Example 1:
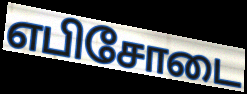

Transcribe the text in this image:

எபிசோடை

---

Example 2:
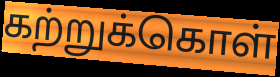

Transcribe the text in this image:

கற்றுக்கொள்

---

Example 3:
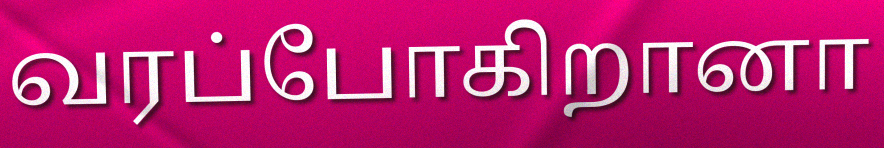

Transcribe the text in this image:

வரப்போகிறானா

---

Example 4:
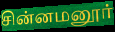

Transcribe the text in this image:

சின்னமனூர்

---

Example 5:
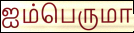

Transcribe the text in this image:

ஐம்பெருமா